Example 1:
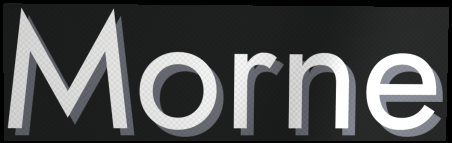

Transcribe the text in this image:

Morne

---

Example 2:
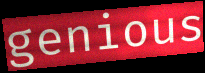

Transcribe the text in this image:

genious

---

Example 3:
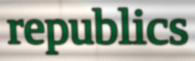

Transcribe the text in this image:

republics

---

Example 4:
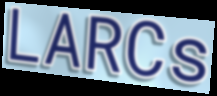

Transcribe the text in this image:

LARCs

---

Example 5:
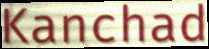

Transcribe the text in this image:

Kanchad